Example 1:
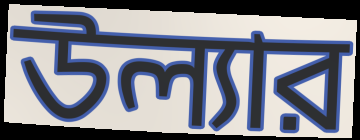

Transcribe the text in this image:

উল্যার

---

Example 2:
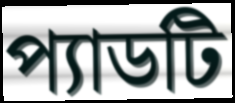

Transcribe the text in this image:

প্যাডটি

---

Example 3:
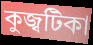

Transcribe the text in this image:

কুজ্বটিকা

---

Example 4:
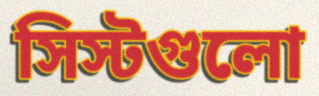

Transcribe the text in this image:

সিস্টগুলো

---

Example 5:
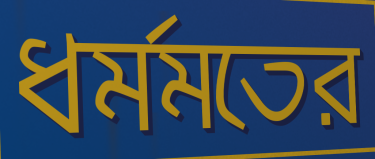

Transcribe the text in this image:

ধর্মমতের